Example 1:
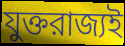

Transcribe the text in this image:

যুক্তরাজ্যই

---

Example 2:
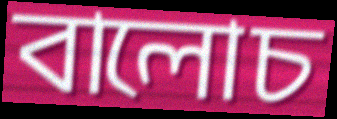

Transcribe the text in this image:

বালোচ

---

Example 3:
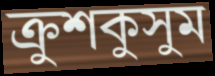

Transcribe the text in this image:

ক্রুশকুসুম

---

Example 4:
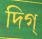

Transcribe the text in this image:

দিগ্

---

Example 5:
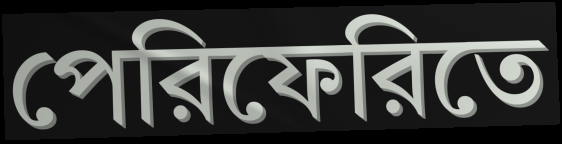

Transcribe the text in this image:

পেরিফেরিতে